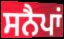
ਸਨੈਪਾਂ